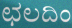
ಛಲದಿಂ